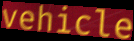
vehicle